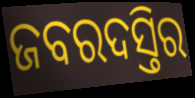
ଜବରଦସ୍ତିର